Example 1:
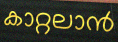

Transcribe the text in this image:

കാറ്റലാൻ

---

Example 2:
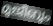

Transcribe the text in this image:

മുജീബും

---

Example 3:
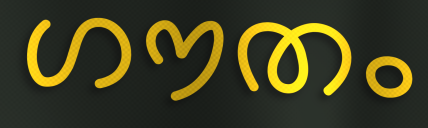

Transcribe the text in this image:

ഗൗതം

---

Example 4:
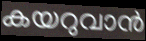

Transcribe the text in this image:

കയറുവാൻ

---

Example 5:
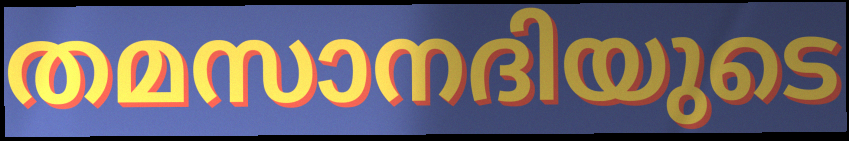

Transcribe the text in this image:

തമസാനദിയുടെ